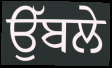
ਉੱਬਲੇ